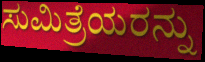
ಸುಮಿತ್ರೆಯರನ್ನು